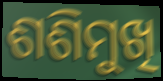
ଶଶିମୁଖି